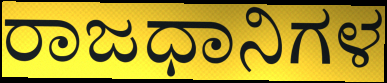
ರಾಜಧಾನಿಗಳ